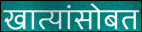
खात्यांसोबत